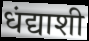
धंद्याशी